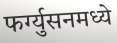
फर्ग्युसनमध्ये